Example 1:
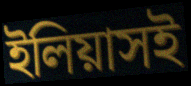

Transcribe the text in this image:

ইলিয়াসই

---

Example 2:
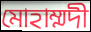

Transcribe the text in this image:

মোহাম্মদী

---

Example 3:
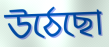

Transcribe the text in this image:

উঠেছো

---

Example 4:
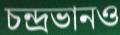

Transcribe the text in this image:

চন্দ্রভানও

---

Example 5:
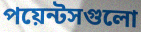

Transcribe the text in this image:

পয়েন্টসগুলো